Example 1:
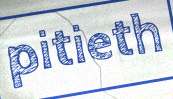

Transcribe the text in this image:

pitieth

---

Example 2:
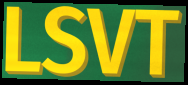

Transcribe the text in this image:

LSVT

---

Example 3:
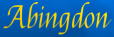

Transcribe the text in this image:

Abingdon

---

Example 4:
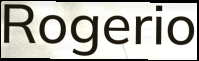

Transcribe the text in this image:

Rogerio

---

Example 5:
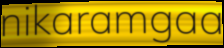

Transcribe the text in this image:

nikaramgaa